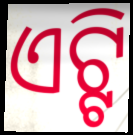
ଏଟ୍ଟି